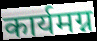
कार्यमग्न